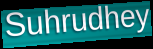
Suhrudhey